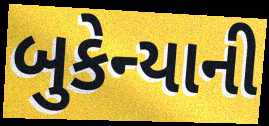
બુકેન્યાની